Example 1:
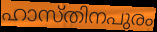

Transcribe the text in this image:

ഹാസ്തിനപുരം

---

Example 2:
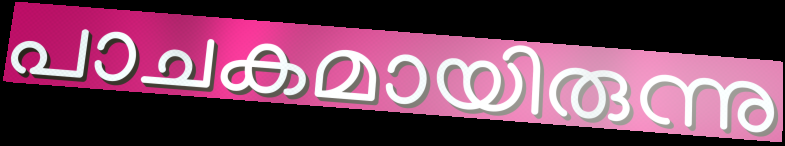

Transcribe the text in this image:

പാചകമായിരുന്നു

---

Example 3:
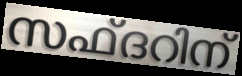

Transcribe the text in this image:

സഫ്ദറിന്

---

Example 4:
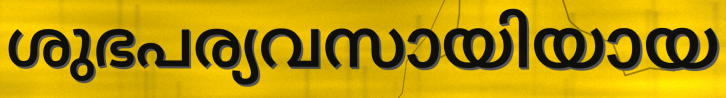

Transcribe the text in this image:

ശുഭപര്യവസായിയായ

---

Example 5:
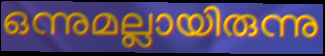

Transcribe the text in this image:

ഒന്നുമല്ലായിരുന്നു